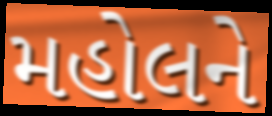
મહોલને